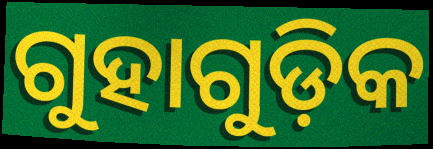
ଗୁହାଗୁଡ଼ିକ